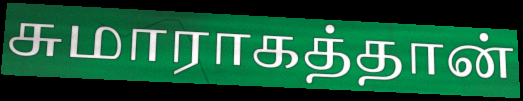
சுமாராகத்தான்